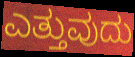
ಎತ್ತುವುದು